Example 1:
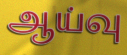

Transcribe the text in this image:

ஆய்வு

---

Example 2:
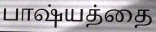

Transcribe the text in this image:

பாஷ்யத்தை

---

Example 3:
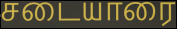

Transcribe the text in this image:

சடையாரை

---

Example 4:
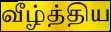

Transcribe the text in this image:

வீழ்த்திய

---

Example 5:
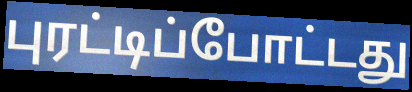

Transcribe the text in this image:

புரட்டிப்போட்டது